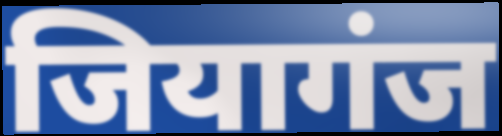
जियागंज